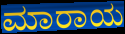
ಮಾರಾಯ